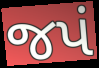
જપં